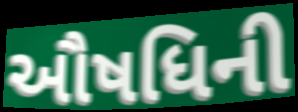
ઔષધિની